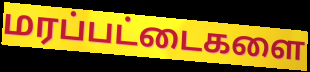
மரப்பட்டைகளை